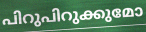
പിറുപിറുക്കുമോ